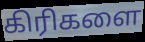
கிரிகளை